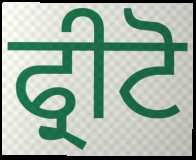
ਫ੍ਰੀਟੋ